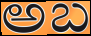
అబ